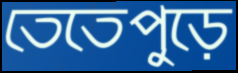
তেতেপুড়ে